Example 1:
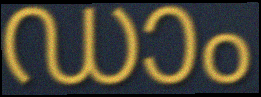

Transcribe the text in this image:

ഡാം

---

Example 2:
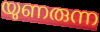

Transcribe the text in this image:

യുണരുന്ന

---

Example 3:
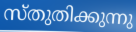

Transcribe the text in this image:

സ്തുതിക്കുന്നു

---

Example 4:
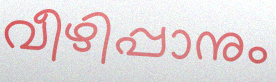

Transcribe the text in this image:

വീഴിപ്പാനും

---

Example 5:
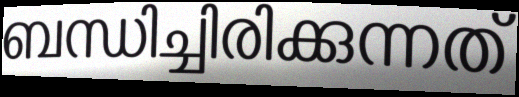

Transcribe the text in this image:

ബന്ധിച്ചിരിക്കുന്നത്